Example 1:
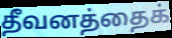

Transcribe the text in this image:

தீவனத்தைக்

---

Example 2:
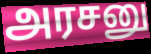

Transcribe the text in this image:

அரசனு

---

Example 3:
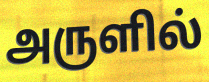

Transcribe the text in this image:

அருளில்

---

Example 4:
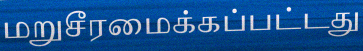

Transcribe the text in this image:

மறுசீரமைக்கப்பட்டது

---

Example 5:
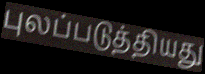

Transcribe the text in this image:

புலப்படுத்தியது